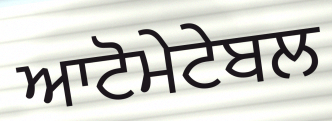
ਆਟੋਮੇਟੇਬਲ